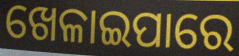
ଖେଳାଇପାରେ